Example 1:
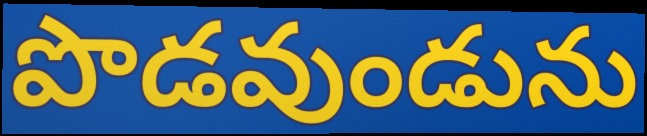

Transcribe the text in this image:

పొడవుండును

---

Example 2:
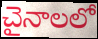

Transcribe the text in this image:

చైనాలలో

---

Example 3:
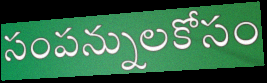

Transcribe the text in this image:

సంపన్నులకోసం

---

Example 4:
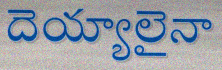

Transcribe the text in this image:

దెయ్యాలైనా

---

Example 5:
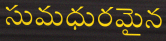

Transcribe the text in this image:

సుమధురమైన